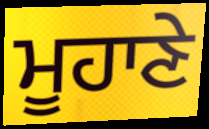
ਮੂਹਾਣੇ